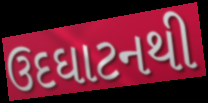
ઉદઘાટનથી